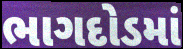
ભાગદોડમાં